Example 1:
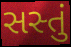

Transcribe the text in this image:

સસ્તું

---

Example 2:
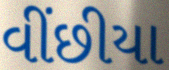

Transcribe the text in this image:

વીંછીયા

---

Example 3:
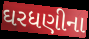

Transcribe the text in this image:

ઘરધણીના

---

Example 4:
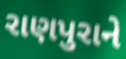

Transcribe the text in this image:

રાણપુરાને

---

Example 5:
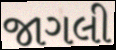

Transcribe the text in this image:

જાગલી